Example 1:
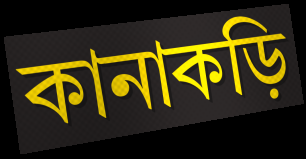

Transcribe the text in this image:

কানাকড়ি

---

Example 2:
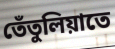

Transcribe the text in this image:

তেঁতুলিয়াতে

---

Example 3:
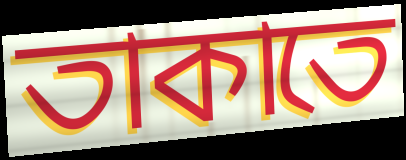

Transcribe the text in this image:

তাকাতে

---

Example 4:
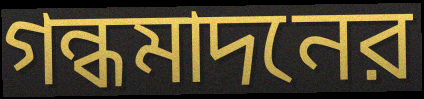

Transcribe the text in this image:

গন্ধমাদনের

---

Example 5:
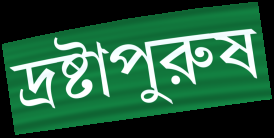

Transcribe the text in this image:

দ্রষ্টাপুরুষ